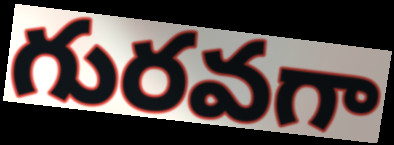
గురవగా